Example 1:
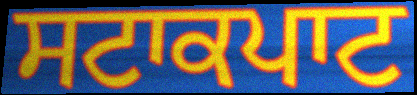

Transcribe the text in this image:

ਸਟਾਕਪਾਟ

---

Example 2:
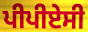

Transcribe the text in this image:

ਪੀਪੀਏਸੀ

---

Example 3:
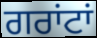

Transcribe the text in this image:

ਗਰਾਂਟਾਂ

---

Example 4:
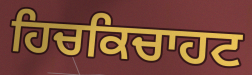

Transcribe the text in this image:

ਹਿਚਕਿਚਾਹਟ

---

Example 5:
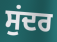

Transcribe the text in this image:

ਸੁਂਦਰ